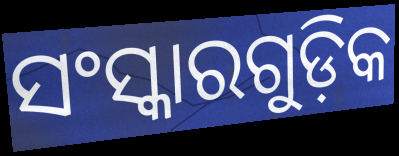
ସଂସ୍କାରଗୁଡ଼ିକ